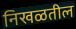
निखळतील